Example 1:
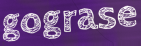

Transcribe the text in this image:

gograse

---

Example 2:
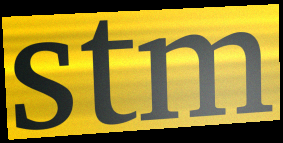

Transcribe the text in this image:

stm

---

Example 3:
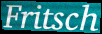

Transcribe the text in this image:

Fritsch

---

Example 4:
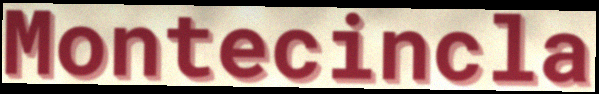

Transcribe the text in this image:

Montecincla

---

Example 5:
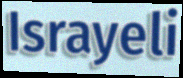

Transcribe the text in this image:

Israyeli